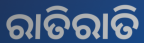
ରାତିରାତି